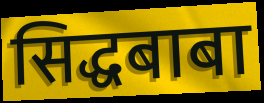
सिद्धबाबा